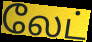
லேட்